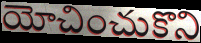
యోచించుకొని